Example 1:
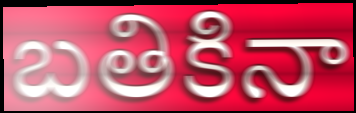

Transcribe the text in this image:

బతికినా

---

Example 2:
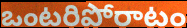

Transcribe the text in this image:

ఒంటరిపోరాటం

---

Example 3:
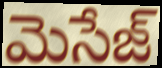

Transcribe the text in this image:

మెసేజ్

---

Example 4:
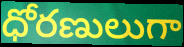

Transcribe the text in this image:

ధోరణులుగా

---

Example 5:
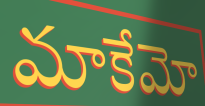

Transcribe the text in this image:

మాకేమో